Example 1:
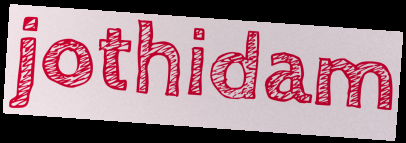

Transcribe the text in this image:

jothidam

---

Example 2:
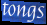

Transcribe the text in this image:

tongs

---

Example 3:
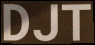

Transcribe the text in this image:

DJT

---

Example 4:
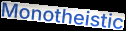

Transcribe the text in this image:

Monotheistic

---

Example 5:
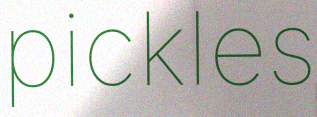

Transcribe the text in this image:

pickles